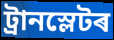
ট্ৰানস্লেটৰ